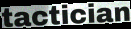
tactician